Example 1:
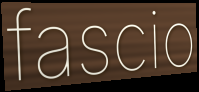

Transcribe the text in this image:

fascio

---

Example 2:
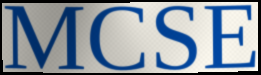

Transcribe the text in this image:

MCSE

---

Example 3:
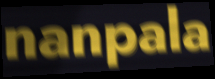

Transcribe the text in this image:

nanpala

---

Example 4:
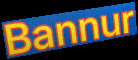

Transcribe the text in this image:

Bannur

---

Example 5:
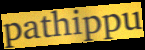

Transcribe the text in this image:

pathippu